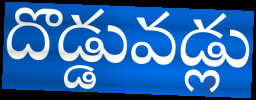
దొడ్డువడ్లు